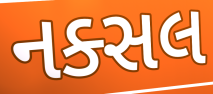
નક્સલ